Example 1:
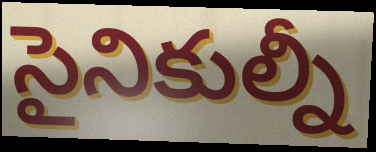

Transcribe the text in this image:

సైనికుల్నీ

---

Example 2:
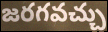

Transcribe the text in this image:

జరగవచ్చు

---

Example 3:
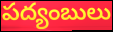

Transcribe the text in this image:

పద్యంబులు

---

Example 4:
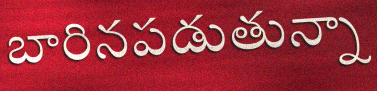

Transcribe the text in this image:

బారినపడుతున్నా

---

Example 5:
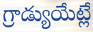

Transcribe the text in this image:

గ్రాడ్యుయేట్లే